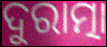
ଦୁରାତ୍ମା